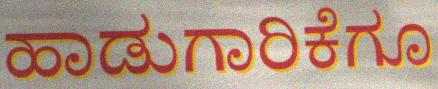
ಹಾಡುಗಾರಿಕೆಗೂ